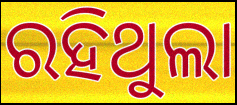
ରହିଥୁଲା